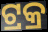
ଟ୍ରକ୍ର